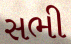
સભી